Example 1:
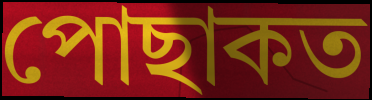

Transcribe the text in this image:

পোছাকত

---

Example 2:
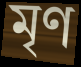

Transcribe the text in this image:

মৃণ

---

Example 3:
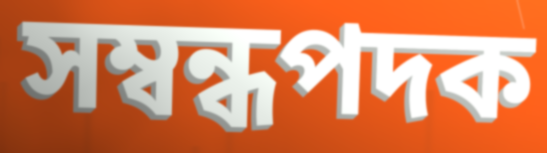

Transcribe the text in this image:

সম্বন্ধপদক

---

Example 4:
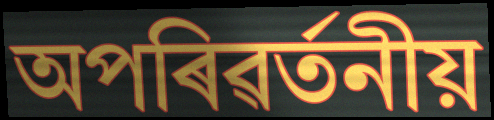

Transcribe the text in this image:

অপৰিৱৰ্তনীয়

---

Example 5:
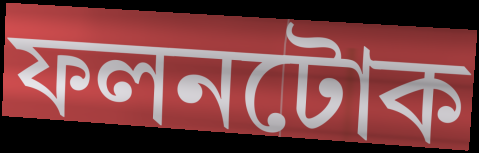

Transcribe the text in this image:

ফলনটোক